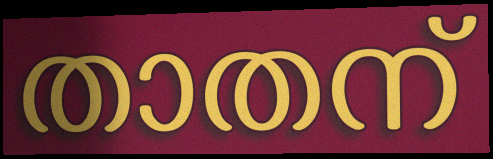
താതന്